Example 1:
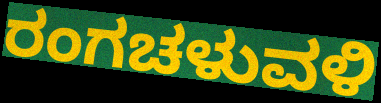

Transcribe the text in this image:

ರಂಗಚಳುವಳಿ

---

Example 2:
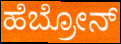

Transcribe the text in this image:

ಹೆಬ್ರೋನ್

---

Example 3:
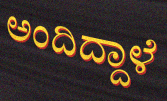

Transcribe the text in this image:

ಅಂದಿದ್ದಾಳೆ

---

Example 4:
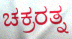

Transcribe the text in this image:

ಚಕ್ರರತ್ನ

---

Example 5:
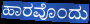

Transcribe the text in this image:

ಹಾರವೊಂದು